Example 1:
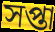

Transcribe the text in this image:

সপ্তা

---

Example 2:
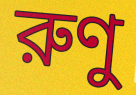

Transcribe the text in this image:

রুণু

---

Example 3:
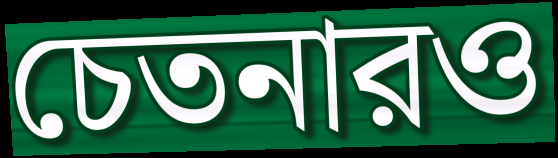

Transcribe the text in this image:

চেতনারও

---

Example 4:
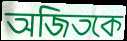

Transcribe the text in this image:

অজিতকে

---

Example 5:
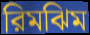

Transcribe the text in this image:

রিমঝিম